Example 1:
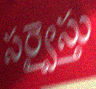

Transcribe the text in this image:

సర్వైస్తు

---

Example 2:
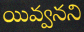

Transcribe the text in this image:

యివ్వనని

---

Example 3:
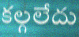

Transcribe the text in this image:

కల్గలేదు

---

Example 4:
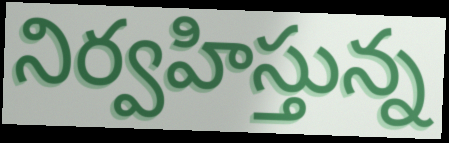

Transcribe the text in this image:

నిర్వహిస్తున్న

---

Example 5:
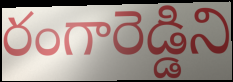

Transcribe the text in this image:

రంగారెడ్డిని